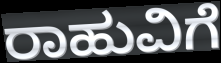
ರಾಹುವಿಗೆ